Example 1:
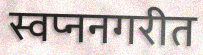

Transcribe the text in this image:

स्वप्ननगरीत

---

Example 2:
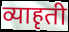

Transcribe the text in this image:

व्याहृती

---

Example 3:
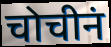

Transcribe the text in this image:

चोचीनं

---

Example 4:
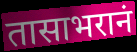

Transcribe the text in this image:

तासाभरानं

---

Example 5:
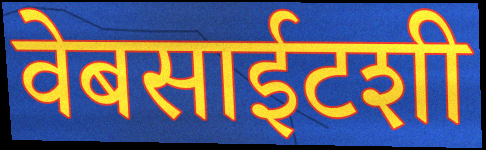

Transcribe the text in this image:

वेबसाईटशी